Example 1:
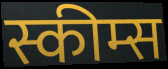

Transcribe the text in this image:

स्‍कीम्‍स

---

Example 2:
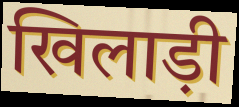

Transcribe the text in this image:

खिलाड़ी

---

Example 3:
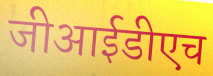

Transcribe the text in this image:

जीआईडीएच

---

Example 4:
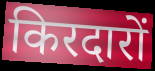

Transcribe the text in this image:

किरदारों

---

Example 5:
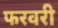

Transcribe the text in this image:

फरवरी